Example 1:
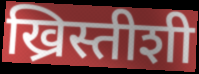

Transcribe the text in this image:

ख्रिस्तीशी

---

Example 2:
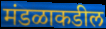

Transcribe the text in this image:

मंडळाकडील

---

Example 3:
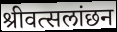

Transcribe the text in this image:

श्रीवत्सलांछन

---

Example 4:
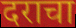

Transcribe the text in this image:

दराचा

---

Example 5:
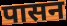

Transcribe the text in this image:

पासन